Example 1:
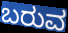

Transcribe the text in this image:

ಬರುವ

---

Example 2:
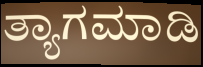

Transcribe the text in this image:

ತ್ಯಾಗಮಾಡಿ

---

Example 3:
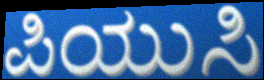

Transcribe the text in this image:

ಪಿಯುಸಿ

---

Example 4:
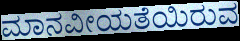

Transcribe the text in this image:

ಮಾನವೀಯತೆಯಿರುವ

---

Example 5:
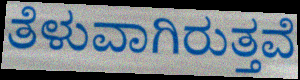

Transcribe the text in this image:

ತೆಳುವಾಗಿರುತ್ತವೆ